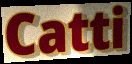
Catti